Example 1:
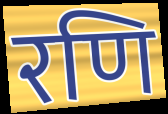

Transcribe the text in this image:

रणि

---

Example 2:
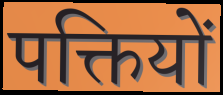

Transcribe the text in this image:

पक्तियों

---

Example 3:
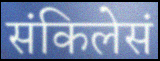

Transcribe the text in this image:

संकिलेसं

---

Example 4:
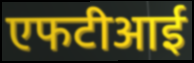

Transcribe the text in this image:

एफटीआई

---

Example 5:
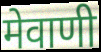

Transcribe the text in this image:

मेवाणी